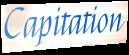
Capitation